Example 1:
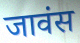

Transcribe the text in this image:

जावंस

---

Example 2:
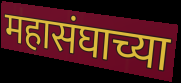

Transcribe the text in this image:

महासंघाच्या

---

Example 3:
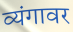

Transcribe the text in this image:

व्यंगावर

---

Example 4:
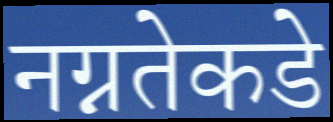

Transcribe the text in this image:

नग्नतेकडे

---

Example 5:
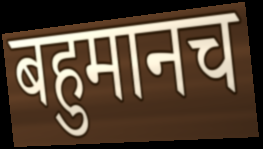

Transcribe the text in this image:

बहुमानच